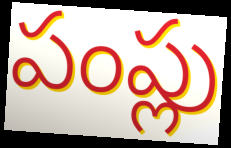
పంప్లు